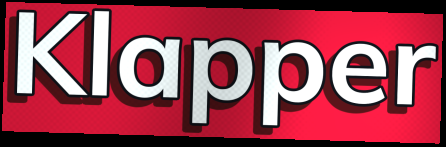
Klapper